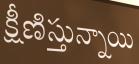
క్షీణిస్తున్నాయి